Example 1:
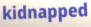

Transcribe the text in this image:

kidnapped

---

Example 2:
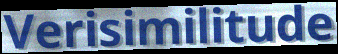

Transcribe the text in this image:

Verisimilitude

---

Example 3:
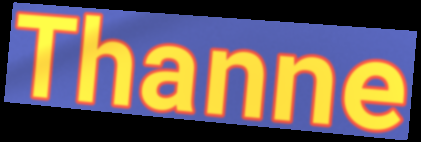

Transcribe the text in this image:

Thanne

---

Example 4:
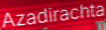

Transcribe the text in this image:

Azadirachta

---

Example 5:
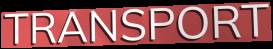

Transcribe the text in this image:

TRANSPORT